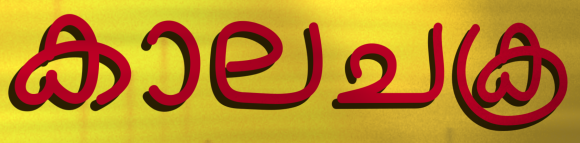
കാലചക്ര